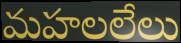
మహలలేలు